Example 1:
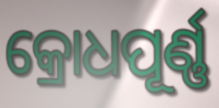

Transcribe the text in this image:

କ୍ରୋଧପୂର୍ଣ୍ଣ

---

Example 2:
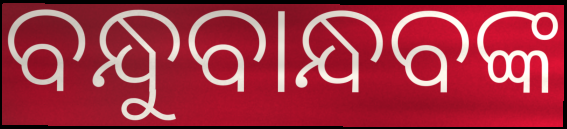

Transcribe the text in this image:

ବନ୍ଧୁବାନ୍ଧବଙ୍କ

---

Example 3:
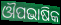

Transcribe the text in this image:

ଔପଭାଷିକ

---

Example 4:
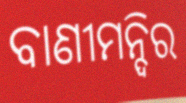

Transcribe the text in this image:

ବାଣୀମନ୍ଦିର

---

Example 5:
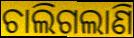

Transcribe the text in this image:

ଚାଲିଗଲାଣି